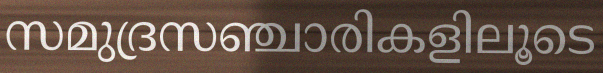
സമുദ്രസഞ്ചാരികളിലൂടെ